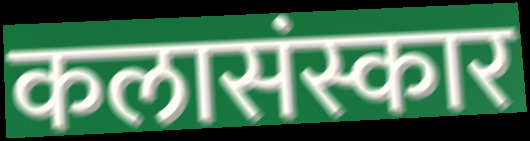
कलासंस्कार